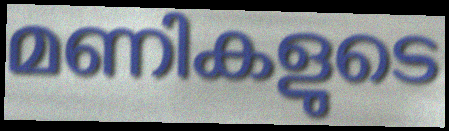
മണികളുടെ